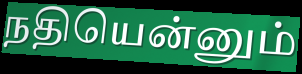
நதியென்னும்